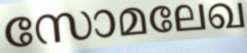
സോമലേഖ